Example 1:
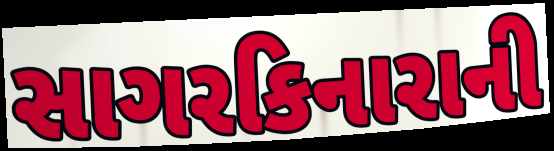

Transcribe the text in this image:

સાગરકિનારાની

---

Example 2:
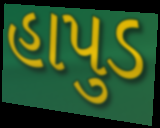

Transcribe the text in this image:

હાપુડ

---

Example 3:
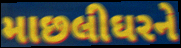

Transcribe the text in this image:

માછલીઘરને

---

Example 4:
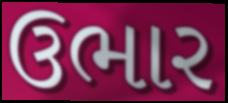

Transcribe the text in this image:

ઉભાર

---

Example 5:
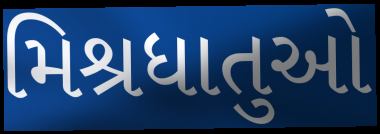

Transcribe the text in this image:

મિશ્રધાતુઓ